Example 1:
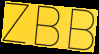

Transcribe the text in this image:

ZBB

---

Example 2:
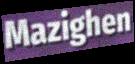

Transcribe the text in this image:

Mazighen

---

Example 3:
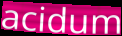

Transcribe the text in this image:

acidum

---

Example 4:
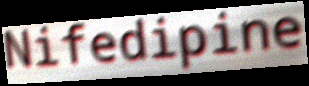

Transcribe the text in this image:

Nifedipine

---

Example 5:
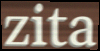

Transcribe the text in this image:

zita